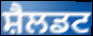
ਸ਼ੈਲਡਟ